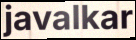
javalkar